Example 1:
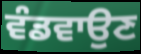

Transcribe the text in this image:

ਵੰਡਵਾਉਣ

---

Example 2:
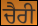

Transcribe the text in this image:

ਚੈਰੀ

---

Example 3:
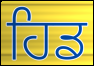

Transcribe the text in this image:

ਹਿਡ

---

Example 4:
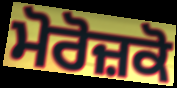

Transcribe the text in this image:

ਮੋਰੋਜ਼ਕੋ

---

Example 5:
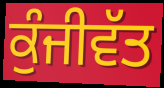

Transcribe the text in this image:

ਕੁੰਜੀਵੱਤ